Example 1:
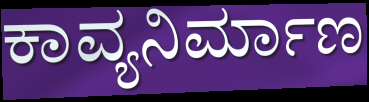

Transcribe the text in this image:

ಕಾವ್ಯನಿರ್ಮಾಣ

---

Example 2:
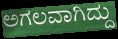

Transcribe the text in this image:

ಅಗಲವಾಗಿದ್ದು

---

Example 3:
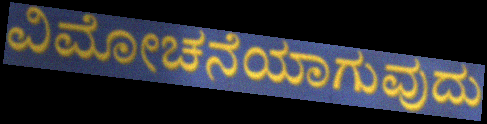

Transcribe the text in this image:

ವಿಮೋಚನೆಯಾಗುವುದು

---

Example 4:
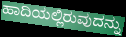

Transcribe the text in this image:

ಹಾದಿಯಲ್ಲಿರುವುದನ್ನು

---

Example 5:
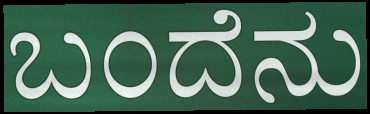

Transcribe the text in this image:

ಬಂದೆನು